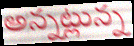
అన్నట్లున్న